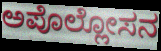
ಅಪೊಲ್ಲೋಸನ